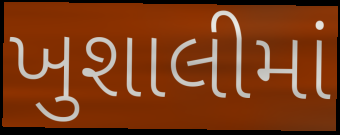
ખુશાલીમાં